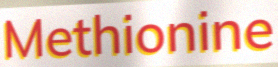
Methionine